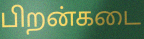
பிறன்கடை